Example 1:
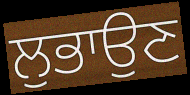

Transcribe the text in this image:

ਲੁਭਾਉਣ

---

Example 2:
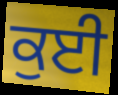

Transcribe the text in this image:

ਕੁਈ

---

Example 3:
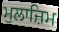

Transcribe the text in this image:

ਮੁਲਾਜ਼ਿਮ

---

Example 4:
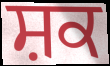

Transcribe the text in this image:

ਸ਼ਕ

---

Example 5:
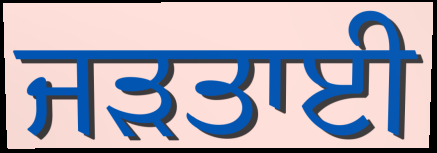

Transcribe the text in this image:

ਜੜਤਾਈ